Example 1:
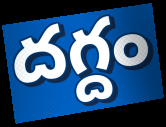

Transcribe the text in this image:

దగ్దం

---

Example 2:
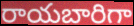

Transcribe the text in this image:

రాయబారిగా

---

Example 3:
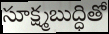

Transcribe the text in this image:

సూక్ష్మబుద్ధితో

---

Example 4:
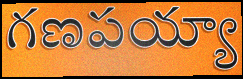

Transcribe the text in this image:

గణపయ్యా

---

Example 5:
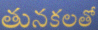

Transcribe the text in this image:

తునకలతో